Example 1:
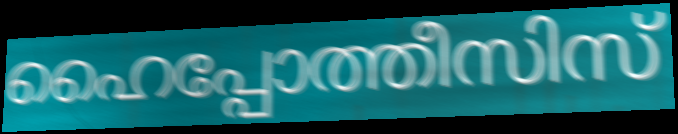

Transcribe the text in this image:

ഹൈപ്പോത്തീസിസ്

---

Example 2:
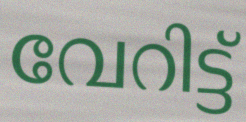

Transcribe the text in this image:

വേറിട്ട്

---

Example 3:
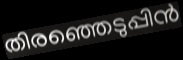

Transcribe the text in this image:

തിരഞ്ഞെടുപ്പിൻ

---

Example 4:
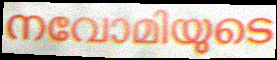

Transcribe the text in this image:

നവോമിയുടെ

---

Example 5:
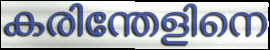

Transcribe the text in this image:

കരിന്തേളിനെ